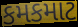
કમકમાટ